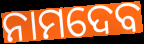
ନାମଦେବ